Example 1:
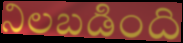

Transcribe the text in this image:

నిలబడింది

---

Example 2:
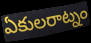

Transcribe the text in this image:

ఏకులరాట్నం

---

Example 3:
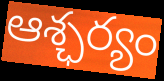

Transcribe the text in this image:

ఆశ్ఛర్యం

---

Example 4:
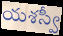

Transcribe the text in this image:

యశస్వీ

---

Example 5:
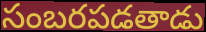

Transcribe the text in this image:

సంబరపడతాడు